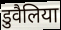
डुवैलिया